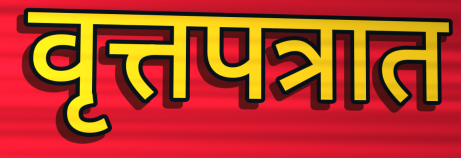
वृत्तपत्रात